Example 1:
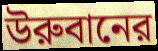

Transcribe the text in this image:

উরুবানের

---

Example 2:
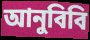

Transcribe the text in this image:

আনুবিবি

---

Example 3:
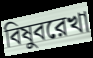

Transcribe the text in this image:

বিষুবরেখা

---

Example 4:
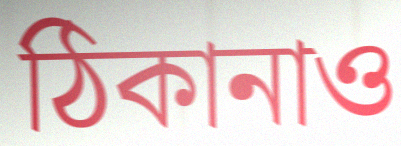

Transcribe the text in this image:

ঠিকানাও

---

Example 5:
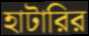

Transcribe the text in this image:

হাটারির